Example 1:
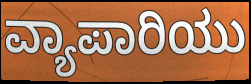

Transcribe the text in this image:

ವ್ಯಾಪಾರಿಯು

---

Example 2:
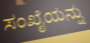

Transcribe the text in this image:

ಸಂಖೈಯನ್ನು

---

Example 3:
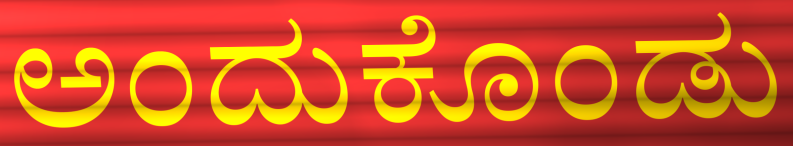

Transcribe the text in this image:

ಅಂದುಕೊಂಡು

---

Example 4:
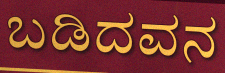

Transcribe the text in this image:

ಬಡಿದವನ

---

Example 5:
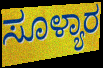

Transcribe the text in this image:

ಸೂಳ್ಯಾರ